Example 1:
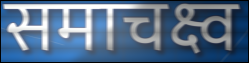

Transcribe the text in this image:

समाचक्ष्व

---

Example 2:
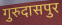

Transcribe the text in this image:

गुरुदासपुर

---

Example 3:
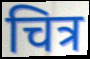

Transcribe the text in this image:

चित्र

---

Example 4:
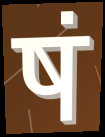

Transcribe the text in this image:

षं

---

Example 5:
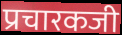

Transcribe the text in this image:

प्रचारकजी